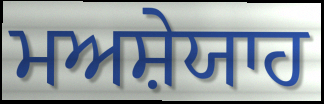
ਮਅਸ਼ੇਯਾਹ